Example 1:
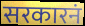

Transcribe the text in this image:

सरकारनं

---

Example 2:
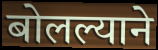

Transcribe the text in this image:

बोलल्याने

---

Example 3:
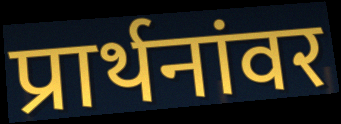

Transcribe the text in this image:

प्रार्थनांवर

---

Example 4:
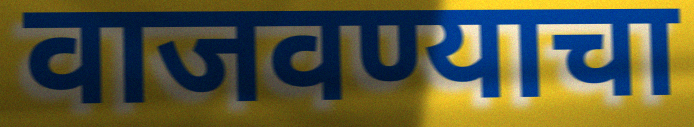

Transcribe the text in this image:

वाजवण्याचा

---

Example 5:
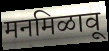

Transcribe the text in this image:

मनमिळावू